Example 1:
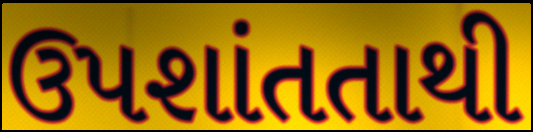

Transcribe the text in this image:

ઉપશાંતતાથી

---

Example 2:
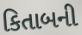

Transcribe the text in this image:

કિતાબની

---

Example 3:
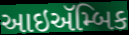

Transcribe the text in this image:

આઇઍમ્બિક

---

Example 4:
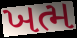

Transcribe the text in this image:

ખત્મ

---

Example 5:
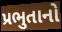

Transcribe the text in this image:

પ્રભુતાનો